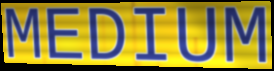
MEDIUM